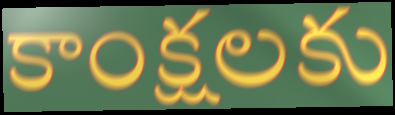
కాంక్షలకు